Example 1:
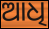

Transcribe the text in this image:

ଆଧି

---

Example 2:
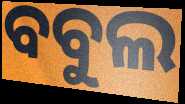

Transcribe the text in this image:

ବବୁଲ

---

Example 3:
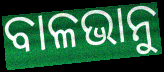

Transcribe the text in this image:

ବାଳଭାନୁ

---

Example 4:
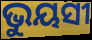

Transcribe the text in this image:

ଭୁୟସୀ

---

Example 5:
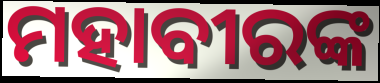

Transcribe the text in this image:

ମହାବୀରଙ୍କ